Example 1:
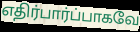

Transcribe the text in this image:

எதிர்பார்ப்பாகவே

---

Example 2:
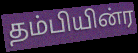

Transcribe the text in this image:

தம்பியின்ர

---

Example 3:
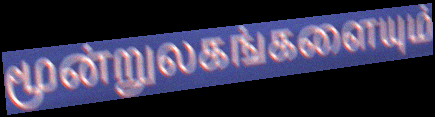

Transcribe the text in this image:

மூன்றுலகங்களையும்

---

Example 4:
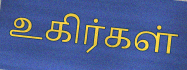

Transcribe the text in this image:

உகிர்கள்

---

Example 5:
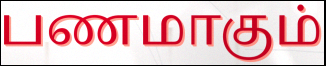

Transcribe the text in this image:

பணமாகும்